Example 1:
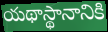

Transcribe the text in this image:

యథాస్థానానికి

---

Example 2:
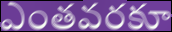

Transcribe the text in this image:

ఎంతవరకూ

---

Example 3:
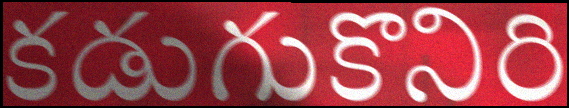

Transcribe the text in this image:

కడుగుకొనిరి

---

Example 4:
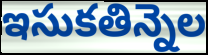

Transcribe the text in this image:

ఇసుకతిన్నెల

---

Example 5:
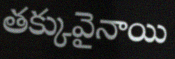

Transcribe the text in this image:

తక్కువైనాయి